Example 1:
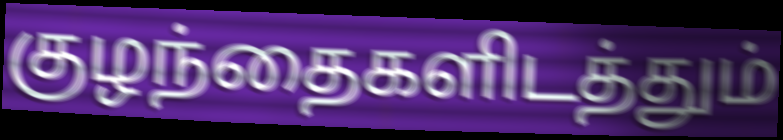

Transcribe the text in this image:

குழந்தைகளிடத்தும்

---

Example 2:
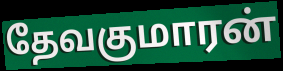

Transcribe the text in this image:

தேவகுமாரன்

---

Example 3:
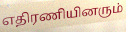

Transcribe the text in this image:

எதிரணியினரும்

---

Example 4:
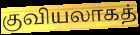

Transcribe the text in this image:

குவியலாகத்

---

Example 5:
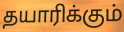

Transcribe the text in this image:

தயாரிக்கும்